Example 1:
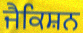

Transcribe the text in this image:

ਜੈਕਿਸ਼ਨ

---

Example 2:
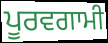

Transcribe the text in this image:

ਪੂਰਵਗਾਮੀ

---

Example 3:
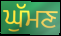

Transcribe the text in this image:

ਘੁੱਮਣ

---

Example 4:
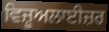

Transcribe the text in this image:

ਵਿਜ਼ੂਅਲਾਈਜ਼ਰ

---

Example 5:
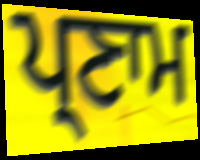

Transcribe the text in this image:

ਪ੍ਣਾਮ